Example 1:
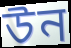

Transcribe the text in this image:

উন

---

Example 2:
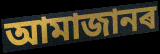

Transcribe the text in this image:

আমাজানৰ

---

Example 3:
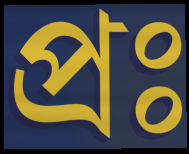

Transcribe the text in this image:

প্ৰঃ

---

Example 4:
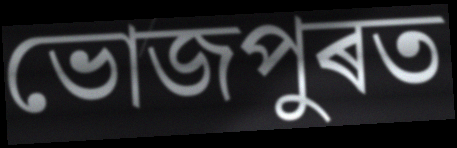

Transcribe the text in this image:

ভোজপুৰত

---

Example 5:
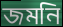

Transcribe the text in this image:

জমনি